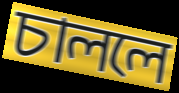
চাললে